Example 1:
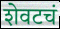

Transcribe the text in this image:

शेवटचं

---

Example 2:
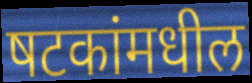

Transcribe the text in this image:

षटकांमधील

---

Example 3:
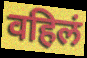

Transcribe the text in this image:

वहिलं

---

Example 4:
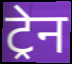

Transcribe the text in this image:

ट्रेन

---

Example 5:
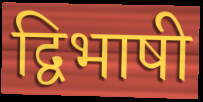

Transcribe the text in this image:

द्विभाषी